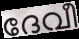
ദേവീ